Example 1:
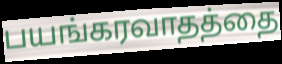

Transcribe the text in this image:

பயங்கரவாதத்தை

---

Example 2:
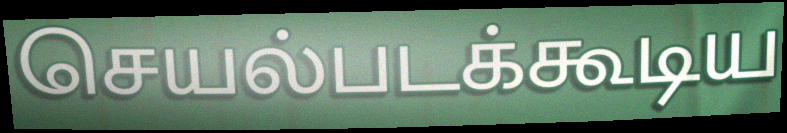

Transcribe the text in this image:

செயல்படக்கூடிய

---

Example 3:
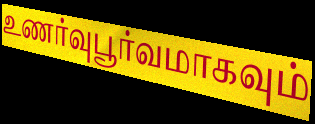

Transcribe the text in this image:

உணர்வுபூர்வமாகவும்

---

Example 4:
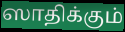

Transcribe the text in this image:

ஸாதிக்கும்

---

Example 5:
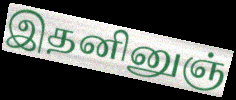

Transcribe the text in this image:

இதனினுஞ்